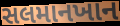
સલમાનખાન